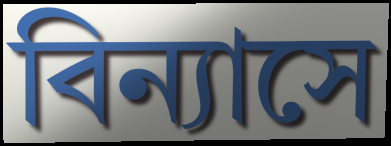
বিন্যাসে